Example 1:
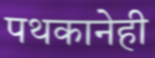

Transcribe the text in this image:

पथकानेही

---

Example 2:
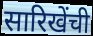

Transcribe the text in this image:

सारिखेंची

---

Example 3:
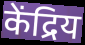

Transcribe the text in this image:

केंद्रिय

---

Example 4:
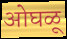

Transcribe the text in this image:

ओघळू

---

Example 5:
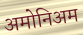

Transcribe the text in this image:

अमोनिअम